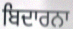
ਬਿਦਾਰਨਾ